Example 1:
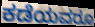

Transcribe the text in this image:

ಕಡೆಯವರೂ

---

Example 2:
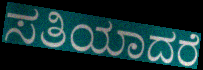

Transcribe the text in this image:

ಸತಿಯಾದರೆ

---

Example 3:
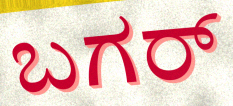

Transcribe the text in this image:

ಬಗರ್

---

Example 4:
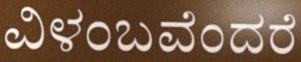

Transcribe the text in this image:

ವಿಳಂಬವೆಂದರೆ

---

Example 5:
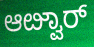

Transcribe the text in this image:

ಆೞ್ವಾರ್